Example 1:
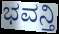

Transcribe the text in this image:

ಭವನ್ತಿ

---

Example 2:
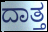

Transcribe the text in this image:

ದಾತ್ತ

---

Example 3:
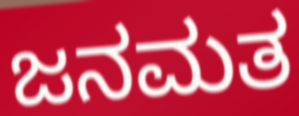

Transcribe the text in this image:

ಜನಮತ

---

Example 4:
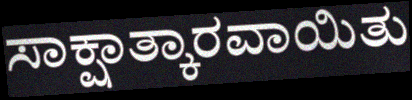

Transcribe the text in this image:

ಸಾಕ್ಷಾತ್ಕಾರವಾಯಿತು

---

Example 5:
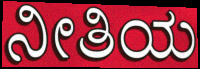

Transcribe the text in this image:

ನೀತಿಯ